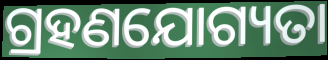
ଗ୍ରହଣଯୋଗ୍ୟତା